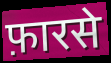
फ़ारसे